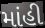
માંહી